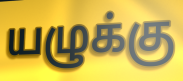
யழுக்கு